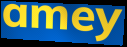
amey